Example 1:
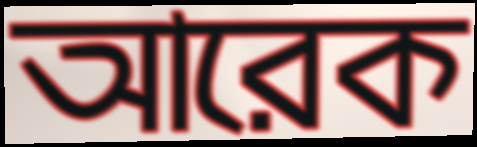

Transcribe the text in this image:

আরেক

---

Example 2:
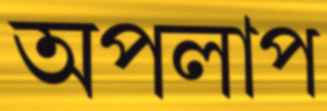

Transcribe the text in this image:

অপলাপ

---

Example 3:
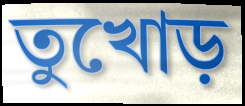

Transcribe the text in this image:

তুখোড়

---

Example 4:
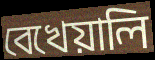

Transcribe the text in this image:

বেখেয়ালি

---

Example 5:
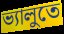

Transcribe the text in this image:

ভ্যালুতে